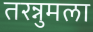
तरन्नुमला